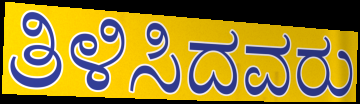
ತಿಳಿಸಿದವರು